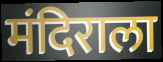
मंदिराला